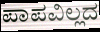
ಪಾಪವಿಲ್ಲದ